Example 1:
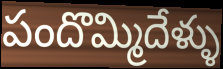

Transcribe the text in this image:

పందొమ్మిదేళ్ళు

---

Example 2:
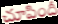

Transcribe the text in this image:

చూపిందీ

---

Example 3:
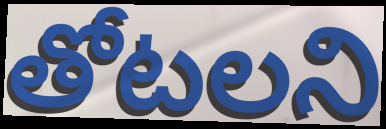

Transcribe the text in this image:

తోటలని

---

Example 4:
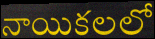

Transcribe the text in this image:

నాయికలలో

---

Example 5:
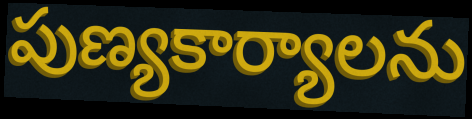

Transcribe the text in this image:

పుణ్యకార్యాలను